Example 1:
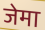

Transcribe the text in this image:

जेमा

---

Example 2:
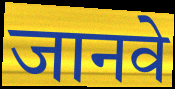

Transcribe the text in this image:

जानवे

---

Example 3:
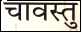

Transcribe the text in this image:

चावस्तु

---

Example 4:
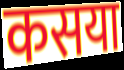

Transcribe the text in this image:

कसया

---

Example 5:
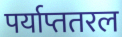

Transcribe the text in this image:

पर्याप्ततरल